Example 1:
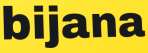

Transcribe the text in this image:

bijana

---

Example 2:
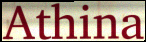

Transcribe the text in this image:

Athina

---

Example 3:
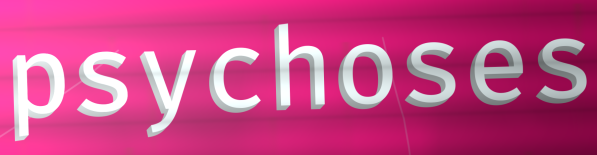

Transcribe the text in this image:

psychoses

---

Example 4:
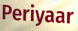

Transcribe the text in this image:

Periyaar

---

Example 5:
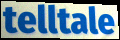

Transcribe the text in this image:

telltale